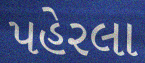
પહેરલા